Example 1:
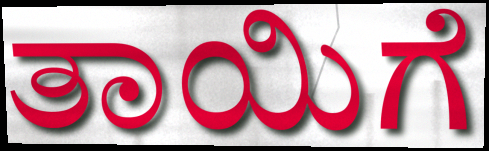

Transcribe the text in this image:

ತಾಯಿಗೆ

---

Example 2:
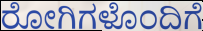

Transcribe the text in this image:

ರೋಗಿಗಳೊಂದಿಗೆ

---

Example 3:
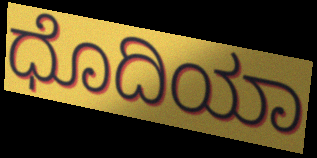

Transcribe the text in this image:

ಧೊದಿಯಾ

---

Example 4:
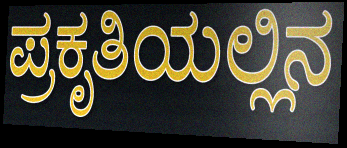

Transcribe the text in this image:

ಪ್ರಕೃತಿಯಲ್ಲಿನ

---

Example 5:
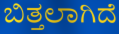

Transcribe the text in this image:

ಬಿತ್ತಲಾಗಿದೆ